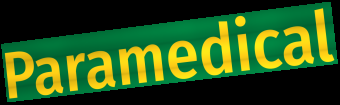
Paramedical